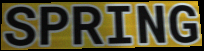
SPRING